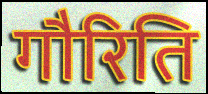
गौरिति